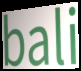
bali